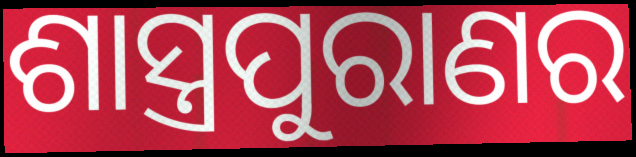
ଶାସ୍ତ୍ରପୁରାଣର